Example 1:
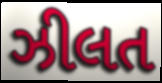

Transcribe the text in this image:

ઝીલત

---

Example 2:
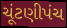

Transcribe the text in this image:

ચૂંટણીપંચ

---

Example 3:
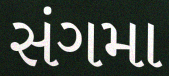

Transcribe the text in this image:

સંગમા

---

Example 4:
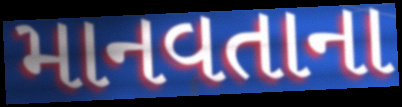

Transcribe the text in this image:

માનવતાના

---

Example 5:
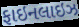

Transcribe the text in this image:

ફાઇનલાઇઝ